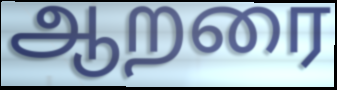
ஆறரை